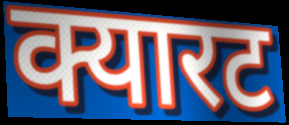
क्यारट